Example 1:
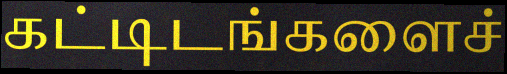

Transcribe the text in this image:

கட்டிடங்களைச்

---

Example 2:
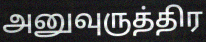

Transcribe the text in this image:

அனுவுருத்திர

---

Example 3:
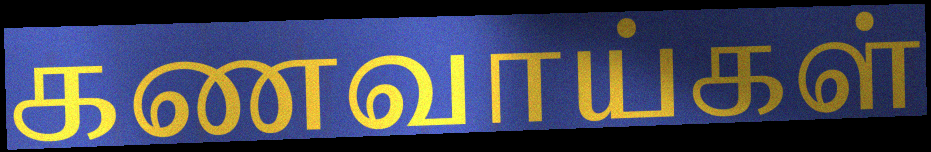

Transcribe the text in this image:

கணவாய்கள்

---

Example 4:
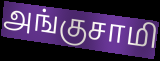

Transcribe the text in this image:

அங்குசாமி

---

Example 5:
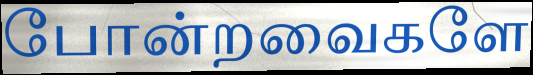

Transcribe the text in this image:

போன்றவைகளே